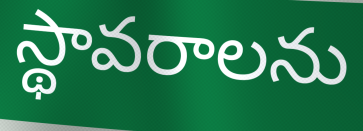
స్థావరాలను